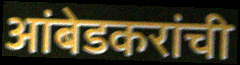
आंबेडकरांची